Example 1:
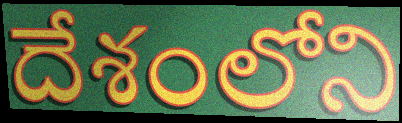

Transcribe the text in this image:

దేశంలోని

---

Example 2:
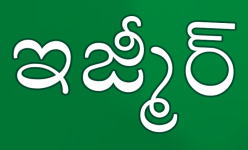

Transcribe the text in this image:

ఇజ్మీర్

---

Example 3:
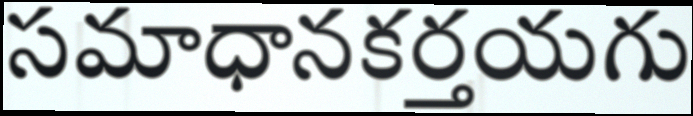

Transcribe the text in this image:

సమాధానకర్తయగు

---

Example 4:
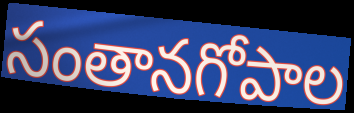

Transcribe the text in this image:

సంతానగోపాల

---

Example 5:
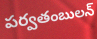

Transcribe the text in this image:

పర్వతంబులన్